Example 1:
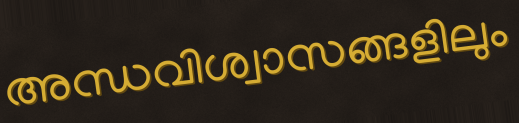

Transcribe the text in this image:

അന്ധവിശ്വാസങ്ങളിലും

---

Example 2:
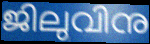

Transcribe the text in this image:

ജിലുവിനു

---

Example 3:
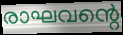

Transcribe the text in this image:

രാഘവന്റെ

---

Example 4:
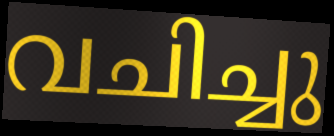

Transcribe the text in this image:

വചിച്ചു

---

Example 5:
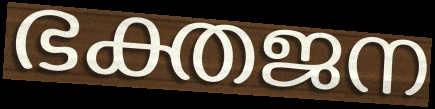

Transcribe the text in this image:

ഭക്തജന